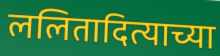
ललितादित्याच्या